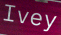
Ivey